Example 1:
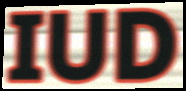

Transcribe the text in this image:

IUD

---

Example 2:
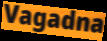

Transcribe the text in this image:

Vagadna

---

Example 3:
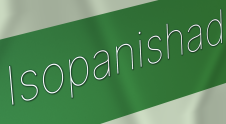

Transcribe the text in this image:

Isopanishad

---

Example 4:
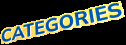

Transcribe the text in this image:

CATEGORIES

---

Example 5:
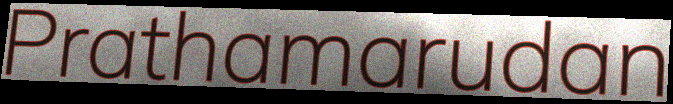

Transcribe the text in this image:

Prathamarudan